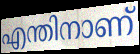
എന്തിനാണ്